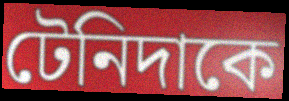
টেনিদাকে